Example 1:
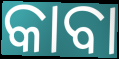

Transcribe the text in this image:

କାବା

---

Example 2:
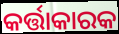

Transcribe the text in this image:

କର୍ତ୍ତାକାରକ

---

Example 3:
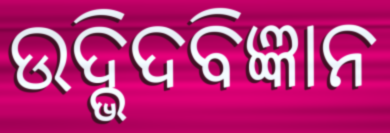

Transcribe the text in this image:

ଉଦ୍ଭିଦବିଜ୍ଞାନ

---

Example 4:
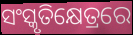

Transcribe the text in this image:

ସଂସ୍କୃତିକ୍ଷେତ୍ରରେ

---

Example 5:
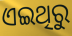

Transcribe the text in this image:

ଏଇଥିରୁ